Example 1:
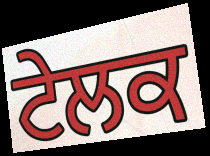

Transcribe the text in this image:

ਟੇਲਕ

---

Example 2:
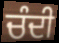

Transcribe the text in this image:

ਚੰਦੀ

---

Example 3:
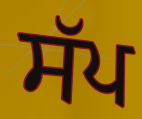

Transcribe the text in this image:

ਸੱਪ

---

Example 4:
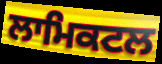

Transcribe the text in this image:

ਲਾਮਿਕਟਲ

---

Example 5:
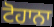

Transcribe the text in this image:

ਟੋਹਾਨਾ